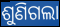
ଶୁଣିଗଲା